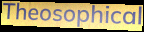
Theosophical